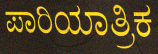
ಪಾರಿಯಾತ್ರಿಕ